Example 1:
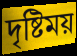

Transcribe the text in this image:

দৃষ্টিময়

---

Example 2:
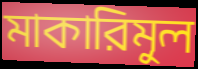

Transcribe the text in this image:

মাকারিমুল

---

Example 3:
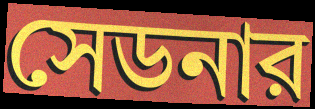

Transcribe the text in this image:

সেডনার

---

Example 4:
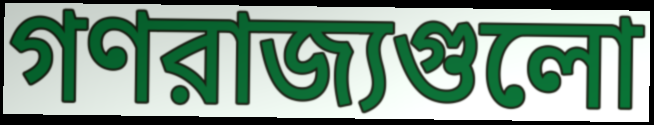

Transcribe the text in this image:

গণরাজ্যগুলো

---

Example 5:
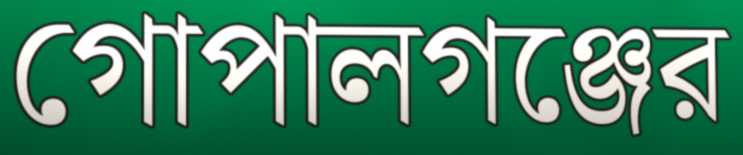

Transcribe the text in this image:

গোপালগঞ্জের